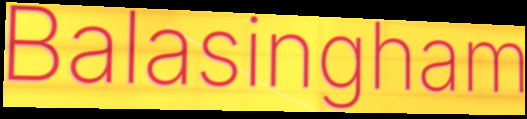
Balasingham